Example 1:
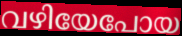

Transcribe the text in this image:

വഴിയേപോയ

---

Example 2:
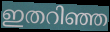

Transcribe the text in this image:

ഇതറിഞ്ഞ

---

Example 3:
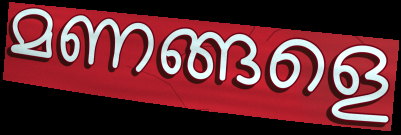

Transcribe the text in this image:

മണങ്ങളെ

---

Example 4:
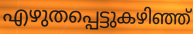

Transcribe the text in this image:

എഴുതപ്പെട്ടുകഴിഞ്ഞ്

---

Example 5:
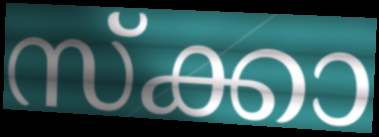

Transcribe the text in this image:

സ്ക്കാ